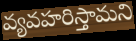
వ్యవహరిస్తామని